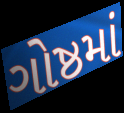
ગોષ્ઠમાં